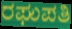
ರಘುಪತಿ